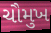
ચૌમુખ